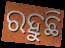
ରହୁଛି